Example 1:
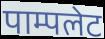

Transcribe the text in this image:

पाम्पलेट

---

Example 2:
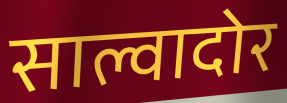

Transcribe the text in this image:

साल्वादोर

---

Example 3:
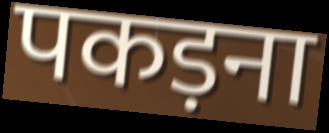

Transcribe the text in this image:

पकड़ना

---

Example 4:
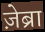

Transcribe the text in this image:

ज़ेब्रा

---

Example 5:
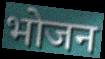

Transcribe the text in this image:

भोजन